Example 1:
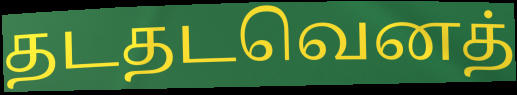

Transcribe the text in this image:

தடதடவெனத்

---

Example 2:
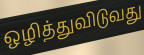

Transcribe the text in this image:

ஒழித்துவிடுவது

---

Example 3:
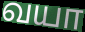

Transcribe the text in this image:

வயா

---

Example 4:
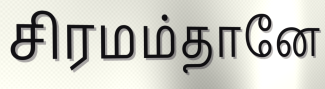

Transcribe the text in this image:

சிரமம்தானே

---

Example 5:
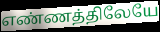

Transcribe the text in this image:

எண்ணத்திலேயே